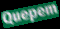
Quepem